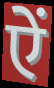
ऐं